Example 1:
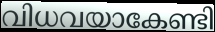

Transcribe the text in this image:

വിധവയാകേണ്ടി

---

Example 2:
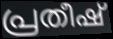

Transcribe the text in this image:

പ്രതീഷ്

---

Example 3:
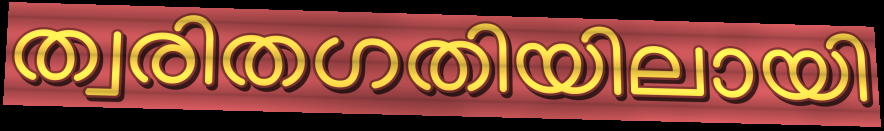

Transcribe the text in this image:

ത്വരിതഗതിയിലായി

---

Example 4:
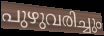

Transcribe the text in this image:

പുഴുവരിച്ചും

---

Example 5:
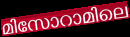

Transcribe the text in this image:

മിസോറാമിലെ